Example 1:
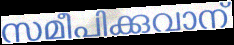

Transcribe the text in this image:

സമീപിക്കുവാന്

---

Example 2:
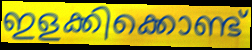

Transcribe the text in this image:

ഇളക്കിക്കൊണ്ട്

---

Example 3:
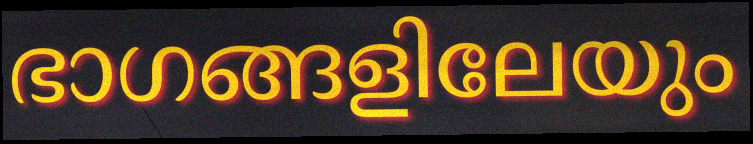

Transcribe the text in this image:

ഭാഗങ്ങളിലേയും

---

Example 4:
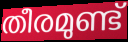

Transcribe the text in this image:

തീരമുണ്ട്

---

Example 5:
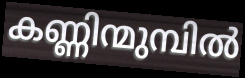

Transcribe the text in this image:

കണ്ണിന്മുമ്പിൽ